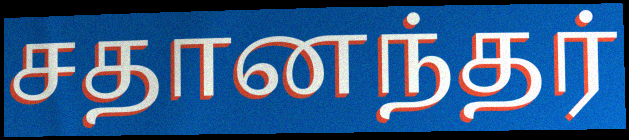
சதானந்தர்